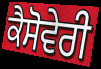
ਕੈਸੋਵੇਰੀ